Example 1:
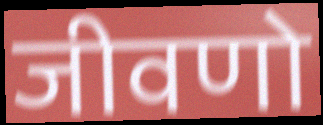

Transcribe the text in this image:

जीवणो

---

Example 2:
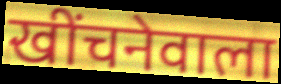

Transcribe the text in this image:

खींचनेवाला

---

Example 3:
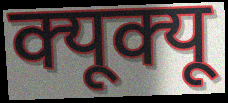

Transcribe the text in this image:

क्यूक्यू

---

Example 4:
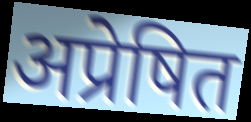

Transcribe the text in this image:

अप्रेषित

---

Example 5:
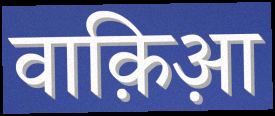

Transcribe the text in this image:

वाक़िआ़